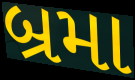
બ્રમા